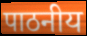
पाठनीय